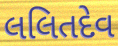
લલિતદેવ